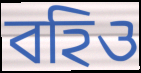
বহিও